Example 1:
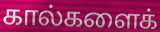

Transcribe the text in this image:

கால்களைக்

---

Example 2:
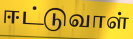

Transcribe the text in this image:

ஈட்டுவாள்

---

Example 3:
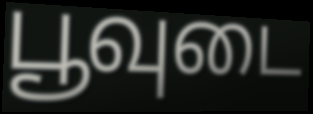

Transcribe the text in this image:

பூவுடை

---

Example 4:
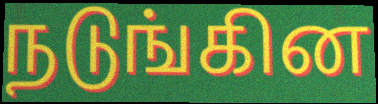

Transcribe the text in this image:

நடுங்கின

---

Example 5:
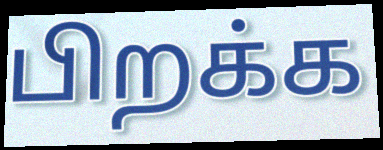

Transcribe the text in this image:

பிறக்க